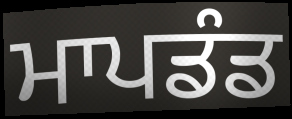
ਮਾਪਡੰਡ